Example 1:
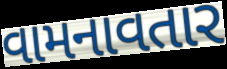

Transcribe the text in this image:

વામનાવતાર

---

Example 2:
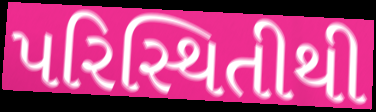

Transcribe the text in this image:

પરિસ્થિતીથી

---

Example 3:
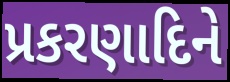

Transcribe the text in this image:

પ્રકરણાદિને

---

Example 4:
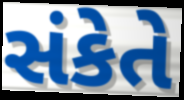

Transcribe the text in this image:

સંકેતે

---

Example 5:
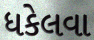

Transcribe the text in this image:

ધકેલવા